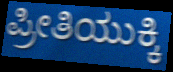
ಪ್ರೀತಿಯುಕ್ಕಿ